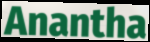
Anantha